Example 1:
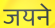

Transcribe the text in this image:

जयने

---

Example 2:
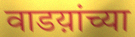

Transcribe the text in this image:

वाडय़ांच्या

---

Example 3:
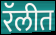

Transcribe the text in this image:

रॅलीत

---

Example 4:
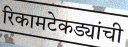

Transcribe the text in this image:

रिकामटेकड्यांची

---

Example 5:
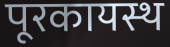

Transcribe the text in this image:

पूरकायस्थ